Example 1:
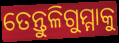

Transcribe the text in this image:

ତେନ୍ତୁଳିଗୁମ୍ମାକୁ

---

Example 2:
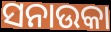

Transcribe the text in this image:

ସନାଉକା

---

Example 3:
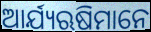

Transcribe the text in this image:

ଆର୍ଯ୍ୟଋଷିମାନେ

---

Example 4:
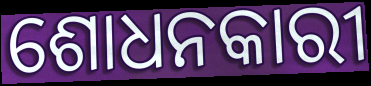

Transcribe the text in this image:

ଶୋଧନକାରୀ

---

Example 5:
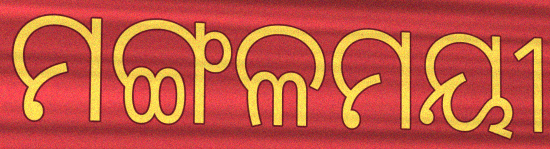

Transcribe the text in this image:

ମଙ୍ଗଳମୟୀ